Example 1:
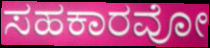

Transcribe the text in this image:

ಸಹಕಾರವೋ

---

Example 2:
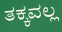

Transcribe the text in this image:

ತಕ್ಕವಲ್ಲ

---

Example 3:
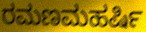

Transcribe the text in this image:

ರಮಣಮಹರ್ಷಿ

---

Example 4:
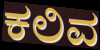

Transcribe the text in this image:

ಕಲಿವ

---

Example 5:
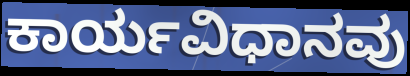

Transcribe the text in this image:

ಕಾರ್ಯವಿಧಾನವು